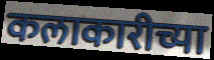
कलाकारीच्या